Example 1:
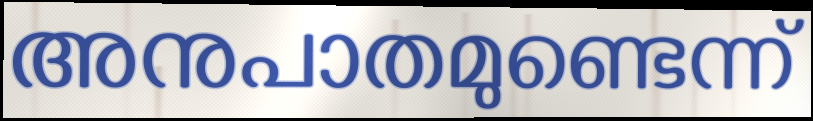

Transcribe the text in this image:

അനുപാതമുണ്ടെന്ന്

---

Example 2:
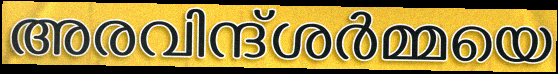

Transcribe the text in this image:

അരവിന്ദ്ശർമ്മയെ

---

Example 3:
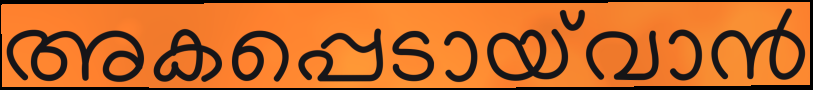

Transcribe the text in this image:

അകപ്പെടായ്‌വാൻ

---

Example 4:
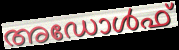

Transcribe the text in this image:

അഡോൾഫ്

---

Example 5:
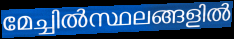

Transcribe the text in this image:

മേച്ചിൽസ്ഥലങ്ങളിൽ